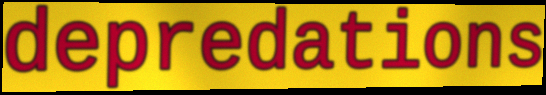
depredations